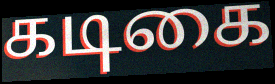
கடிகை